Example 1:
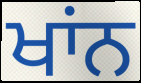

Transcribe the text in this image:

ਖਾਂਨ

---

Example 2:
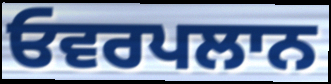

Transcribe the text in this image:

ਓਵਰਪਲਾਨ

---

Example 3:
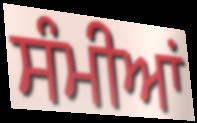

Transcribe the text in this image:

ਸੰਮੀਆਂ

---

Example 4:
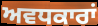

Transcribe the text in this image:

ਅਵਧਕਾਰਾਂ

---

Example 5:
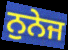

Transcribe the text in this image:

ਨੁਨੇਜ